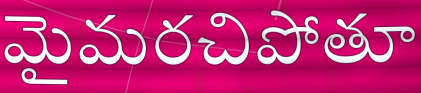
మైమరచిపోతూ